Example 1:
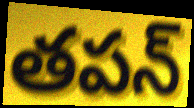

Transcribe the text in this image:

తపన్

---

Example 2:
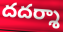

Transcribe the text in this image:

దదర్శా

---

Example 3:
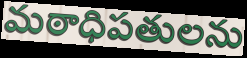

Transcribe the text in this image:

మఠాధిపతులను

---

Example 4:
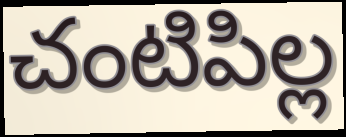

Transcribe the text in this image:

చంటిపిల్ల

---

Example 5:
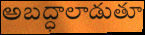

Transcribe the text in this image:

అబద్ధాలాడుతూ